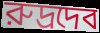
রুদ্রদেব